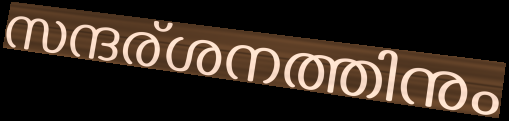
സന്ദര്ശനത്തിനും